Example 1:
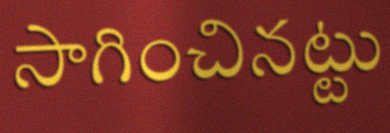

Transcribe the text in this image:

సాగించినట్టు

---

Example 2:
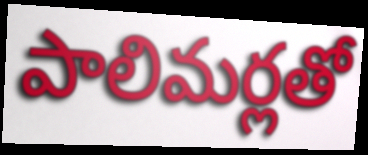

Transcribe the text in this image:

పాలిమర్లతో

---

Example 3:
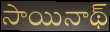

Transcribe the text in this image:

సాయినాథ్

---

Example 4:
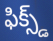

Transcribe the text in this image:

ఫిక్స్డ్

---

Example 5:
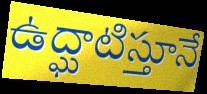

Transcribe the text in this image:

ఉద్ఘాటిస్తూనే